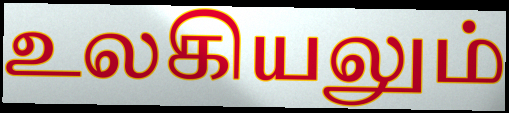
உலகியலும்